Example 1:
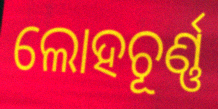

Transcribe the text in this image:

ଲୋହଚୂର୍ଣ୍ଣ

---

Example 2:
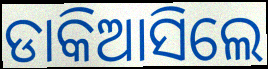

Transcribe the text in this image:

ଡାକିଆସିଲେ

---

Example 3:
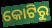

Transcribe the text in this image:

କୋଟିରୁ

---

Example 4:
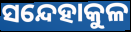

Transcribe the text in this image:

ସନ୍ଦେହାକୁଳ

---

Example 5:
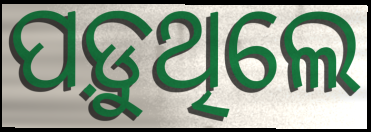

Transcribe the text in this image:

ପଡ଼ୁଥିଲେ